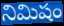
నిమిషం